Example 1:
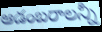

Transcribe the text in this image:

ఆడంబరాలన్నీ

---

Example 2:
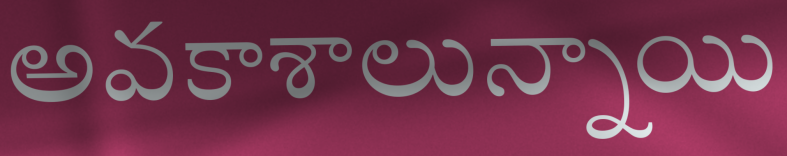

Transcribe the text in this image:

అవకాశాలున్నాయి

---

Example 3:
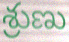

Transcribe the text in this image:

శ్రుణు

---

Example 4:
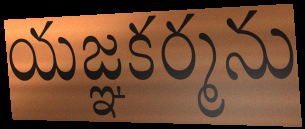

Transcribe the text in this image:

యజ్ఞకర్మను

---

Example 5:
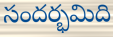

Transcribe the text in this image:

సందర్భమిది